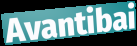
Avantibai